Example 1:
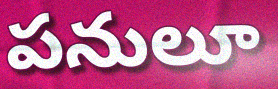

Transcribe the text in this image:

పనులూ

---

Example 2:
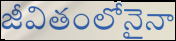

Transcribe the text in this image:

జీవితంలోనైనా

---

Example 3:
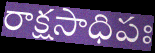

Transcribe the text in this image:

రాక్షసాధిపః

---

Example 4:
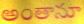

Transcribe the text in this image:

అంతానూ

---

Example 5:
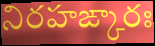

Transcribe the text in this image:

నిరహఙ్కారః